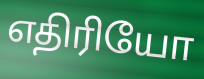
எதிரியோ